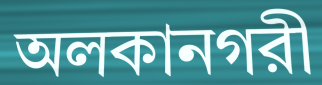
অলকানগরী